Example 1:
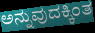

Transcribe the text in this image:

ಅನ್ನುವುದಕ್ಕಿಂತ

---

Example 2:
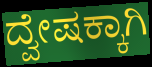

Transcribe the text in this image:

ದ್ವೇಷಕ್ಕಾಗಿ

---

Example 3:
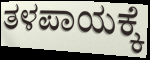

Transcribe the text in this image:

ತಳಪಾಯಕ್ಕೆ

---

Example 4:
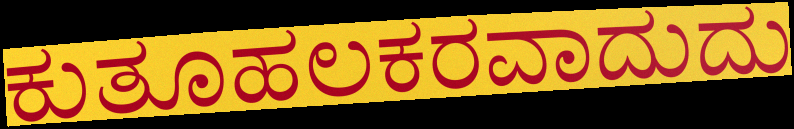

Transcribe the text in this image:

ಕುತೂಹಲಕರವಾದುದು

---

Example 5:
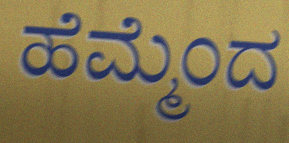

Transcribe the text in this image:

ಹೆಮ್ಮೆಂದ